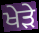
ਖੇੜੇ